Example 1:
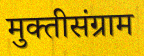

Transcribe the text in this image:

मुक्तीसंग्राम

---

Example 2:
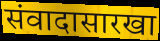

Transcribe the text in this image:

संवादासारखा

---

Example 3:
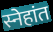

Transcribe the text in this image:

स्नेहांत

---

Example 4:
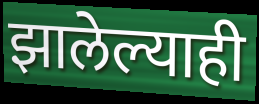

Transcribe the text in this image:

झालेल्याही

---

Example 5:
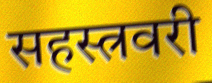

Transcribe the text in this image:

सहस्त्रवरी